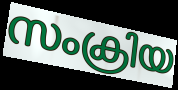
സംക്രിയ